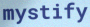
mystify